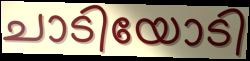
ചാടിയോടി